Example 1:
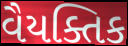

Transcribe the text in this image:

વૈયક્તિક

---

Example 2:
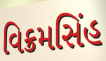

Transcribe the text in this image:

વિક્રમસિંહ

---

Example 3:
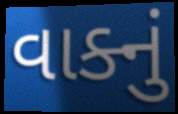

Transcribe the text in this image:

વાક્નું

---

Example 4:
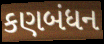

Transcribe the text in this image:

કણબંધન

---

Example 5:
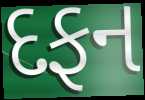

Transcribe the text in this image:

દફન